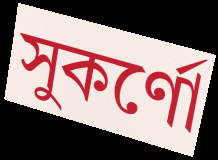
সুকর্ণো